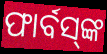
ଫାର୍ବସ୍‌ଙ୍କ